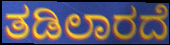
ತಡಿಲಾರದೆ